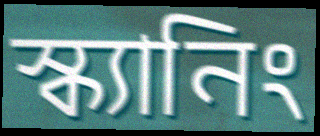
স্ক্যানিং